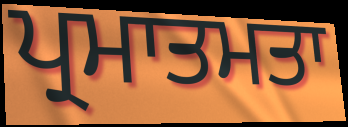
ਪ੍ਰਮਾਤਮਤਾ